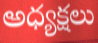
అధ్యక్షలు